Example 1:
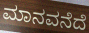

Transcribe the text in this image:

ಮಾನವನೆದೆ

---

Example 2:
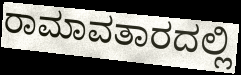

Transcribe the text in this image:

ರಾಮಾವತಾರದಲ್ಲಿ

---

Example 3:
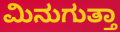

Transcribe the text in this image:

ಮಿನುಗುತ್ತಾ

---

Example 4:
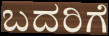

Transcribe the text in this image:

ಬದರಿಗೆ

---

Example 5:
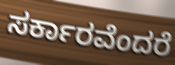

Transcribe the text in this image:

ಸರ್ಕಾರವೆಂದರೆ